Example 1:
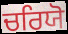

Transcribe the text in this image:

ਚਰਿਯੋ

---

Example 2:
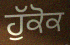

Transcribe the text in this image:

ਹੁੱਕੋਕ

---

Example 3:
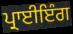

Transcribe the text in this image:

ਪ੍ਰਾਈਇੰਗ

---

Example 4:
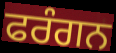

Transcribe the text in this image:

ਫਰੰਗਨ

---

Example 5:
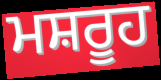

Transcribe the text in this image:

ਮਸ਼ਰੂਹ